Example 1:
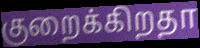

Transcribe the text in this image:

குறைக்கிறதா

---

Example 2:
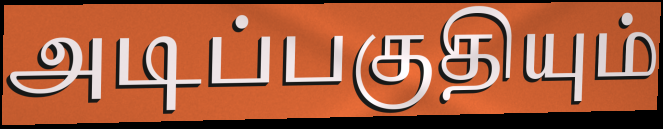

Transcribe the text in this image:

அடிப்பகுதியும்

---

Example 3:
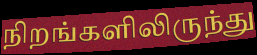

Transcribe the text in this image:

நிறங்களிலிருந்து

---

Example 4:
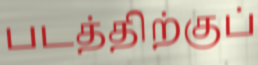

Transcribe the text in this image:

படத்திற்குப்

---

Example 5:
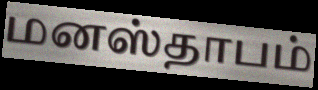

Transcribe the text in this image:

மனஸ்தாபம்